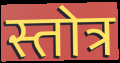
स्तोत्र